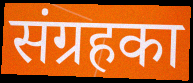
संग्रहका